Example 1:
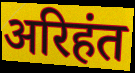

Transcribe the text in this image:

अरिहंत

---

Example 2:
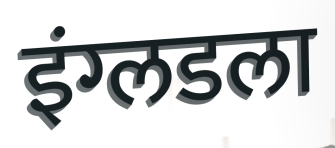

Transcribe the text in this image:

इंग्लडला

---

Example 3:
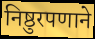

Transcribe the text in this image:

निष्ठुरपणाने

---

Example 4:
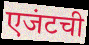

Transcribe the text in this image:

एजंटची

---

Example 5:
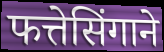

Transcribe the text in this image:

फत्तेसिंगाने